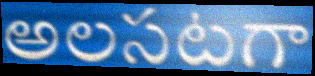
అలసటగా